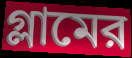
গ্লামের